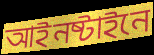
আইনষ্টাইনে